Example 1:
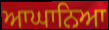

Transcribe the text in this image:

ਆਘਾਨਿਆ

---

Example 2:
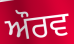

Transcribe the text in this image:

ਔਰਵ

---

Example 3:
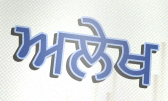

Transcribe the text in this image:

ਅਲੇਖ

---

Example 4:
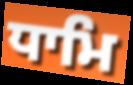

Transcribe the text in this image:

ਧਾਮਿ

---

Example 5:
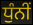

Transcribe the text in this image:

ਧੁੰਨੀਂ